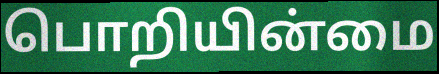
பொறியின்மை